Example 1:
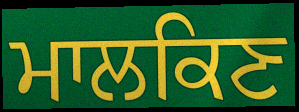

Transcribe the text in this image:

ਮਾਲਕਿਣ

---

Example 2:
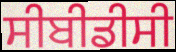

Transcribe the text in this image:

ਸੀਬੀਡੀਸੀ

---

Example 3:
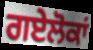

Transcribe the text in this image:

ਗਏਲੋਕਾਂ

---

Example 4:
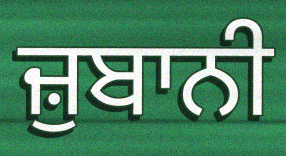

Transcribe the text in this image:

ਜ਼ੁਬਾਨੀ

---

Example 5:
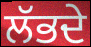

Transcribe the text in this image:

ਲੱਭਦੇ